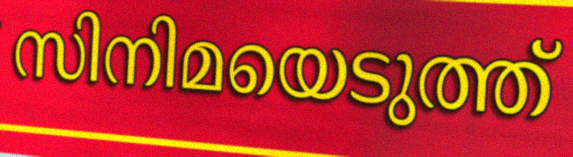
സിനിമയെടുത്ത്